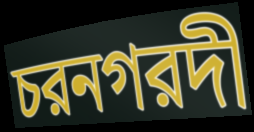
চরনগরদী